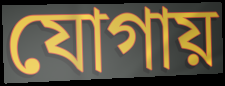
যোগায়